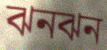
ঝনঝন